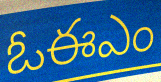
ఓఈఎం